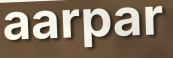
aarpar